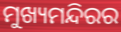
ମୁଖ୍ୟମନ୍ଦିରର